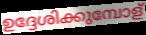
ഉദ്ദേശിക്കുമ്പോള്